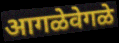
आगळेवेगळे